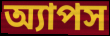
অ্যাপস